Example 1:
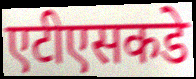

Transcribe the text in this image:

एटीएसकडे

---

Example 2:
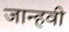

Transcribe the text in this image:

जान्हवी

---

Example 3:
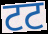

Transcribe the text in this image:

टट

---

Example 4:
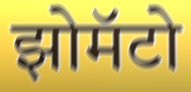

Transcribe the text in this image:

झोमॅटो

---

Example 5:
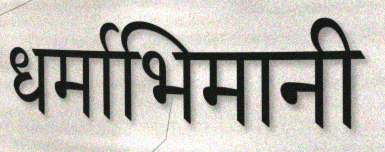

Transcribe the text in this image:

धर्माभिमानी